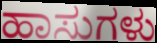
ಹಾಸುಗಳು